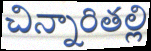
చిన్నారితల్లి